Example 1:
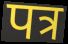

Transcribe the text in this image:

पत्र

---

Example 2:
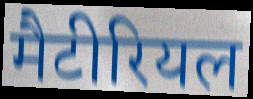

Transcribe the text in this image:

मैटीरियल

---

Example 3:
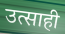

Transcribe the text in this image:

उत्साही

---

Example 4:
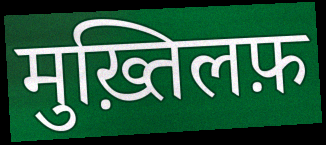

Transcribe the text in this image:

मुख़्तिलफ़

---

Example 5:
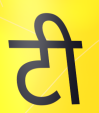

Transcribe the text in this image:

टी